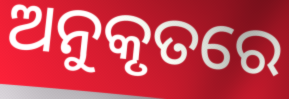
ଅନୁକୃତରେ